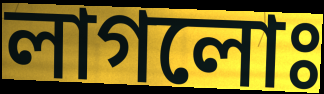
লাগলোঃ